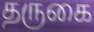
தருகை